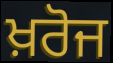
ਖ਼ਰੋਜ